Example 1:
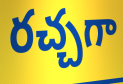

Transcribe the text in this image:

రచ్చగా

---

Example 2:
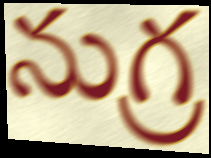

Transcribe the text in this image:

నుగ్ర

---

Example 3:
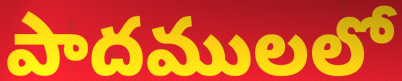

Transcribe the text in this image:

పాదములలో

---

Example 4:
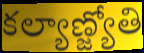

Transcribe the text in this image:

కల్యాణ్జ్యోతి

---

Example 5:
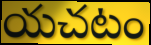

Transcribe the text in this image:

యచటం